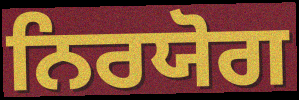
ਨਿਰਯੋਗ